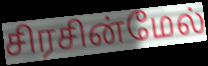
சிரசின்மேல்